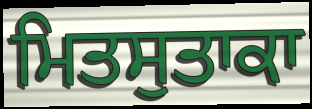
ਮਿਤਸੁਤਾਕਾ